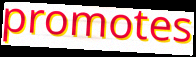
promotes